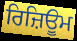
ਰਿਜ਼ਿਊਮ